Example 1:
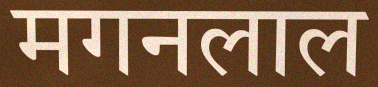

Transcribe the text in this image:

मगनलाल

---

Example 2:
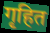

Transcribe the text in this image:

गृहित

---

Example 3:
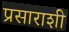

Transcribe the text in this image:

प्रसाराशी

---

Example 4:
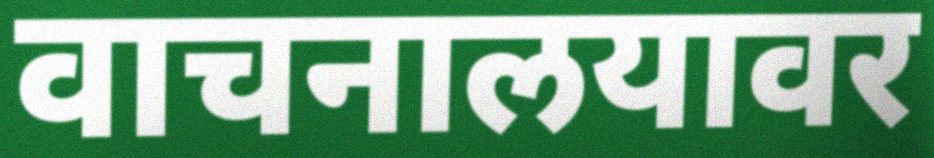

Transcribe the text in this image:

वाचनालयावर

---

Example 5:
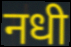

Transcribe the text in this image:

नधी